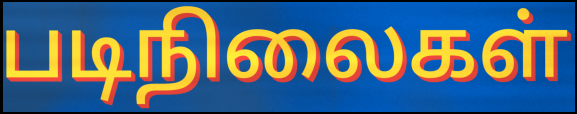
படிநிலைகள்